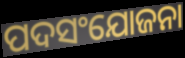
ପଦସଂଯୋଜନା